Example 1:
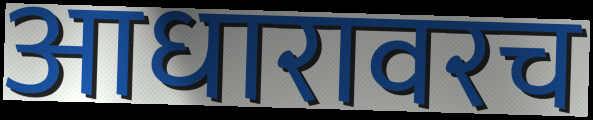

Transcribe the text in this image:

आधारावरच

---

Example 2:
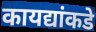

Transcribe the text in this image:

कायद्यांकडे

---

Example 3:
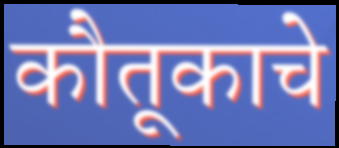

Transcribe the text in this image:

कौतूकाचे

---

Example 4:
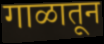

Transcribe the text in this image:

गाळातून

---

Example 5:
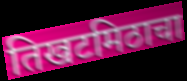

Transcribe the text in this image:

तिखटमिठाचा